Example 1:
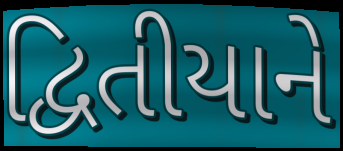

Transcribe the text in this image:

દ્વિતીયાને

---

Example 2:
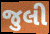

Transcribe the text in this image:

જુલી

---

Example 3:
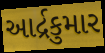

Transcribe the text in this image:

આર્દ્રકુમાર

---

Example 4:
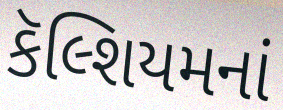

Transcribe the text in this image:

કૅલ્શિયમનાં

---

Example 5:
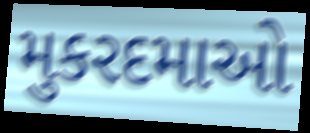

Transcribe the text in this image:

મુકરદમાઓ